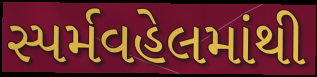
સ્પર્મવહેલમાંથી